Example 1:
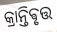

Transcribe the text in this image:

କ୍ରାନ୍ତିଵୃତ୍ତ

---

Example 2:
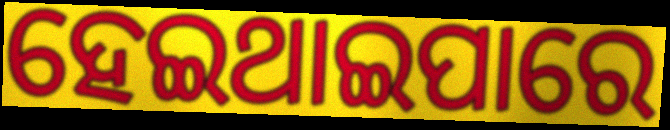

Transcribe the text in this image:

ହେଇଥାଇପାରେ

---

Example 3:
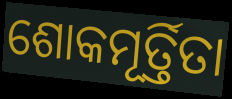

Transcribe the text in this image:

ଶୋକମୂର୍ତ୍ତିତା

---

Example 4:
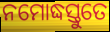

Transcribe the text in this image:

ନମୋଦ୍ଧସ୍ତୁତେ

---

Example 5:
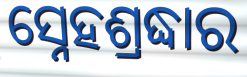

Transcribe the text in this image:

ସ୍ନେହଶ୍ରଦ୍ଧାର